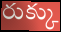
రుక్కు